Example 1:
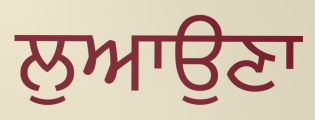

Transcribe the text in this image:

ਲੁਆਉਣਾ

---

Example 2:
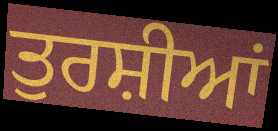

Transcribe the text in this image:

ਤੁਰਸ਼ੀਆਂ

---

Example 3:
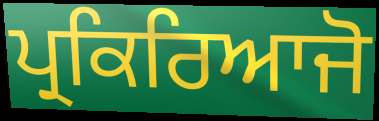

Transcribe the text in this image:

ਪ੍ਰਕਿਰਿਆਜੋ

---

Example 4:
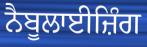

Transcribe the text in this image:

ਨੈਬੂਲਾਈਜ਼ਿੰਗ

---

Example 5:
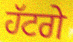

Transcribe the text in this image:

ਹੱਟਗੇ